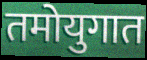
तमोयुगात